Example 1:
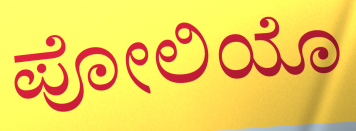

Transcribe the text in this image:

ಪೋಲಿಯೊ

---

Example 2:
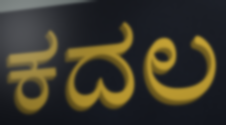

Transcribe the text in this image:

ಕದಲ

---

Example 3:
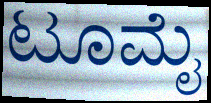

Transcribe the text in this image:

ಟೂಮೈ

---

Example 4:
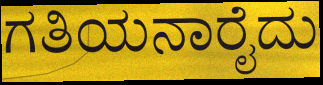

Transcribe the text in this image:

ಗತಿಯನಾರೈದು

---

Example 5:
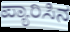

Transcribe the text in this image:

ಪ್ಯಾರಿಸಿನ